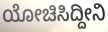
ಯೋಚಿಸಿದ್ದೀನಿ